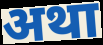
अथा